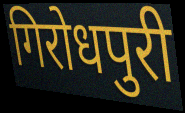
गिरोधपुरी